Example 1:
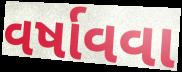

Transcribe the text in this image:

વર્ષાવવા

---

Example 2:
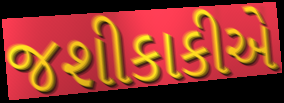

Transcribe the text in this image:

જશીકાકીએ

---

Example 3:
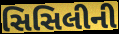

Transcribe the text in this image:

સિસિલીની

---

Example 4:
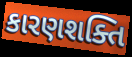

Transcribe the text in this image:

કારણશક્તિ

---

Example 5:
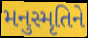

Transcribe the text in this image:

મનુસ્મૃતિને